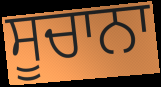
ਸੂਚਾਨਾ